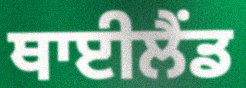
ਥਾਈਲੈਂਡ